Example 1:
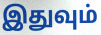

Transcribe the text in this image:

இதுவும்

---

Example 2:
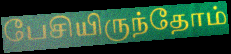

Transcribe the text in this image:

பேசியிருந்தோம்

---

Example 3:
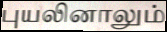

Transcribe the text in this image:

புயலினாலும்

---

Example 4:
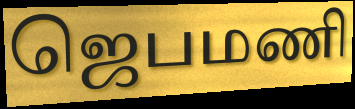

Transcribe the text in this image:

ஜெபமணி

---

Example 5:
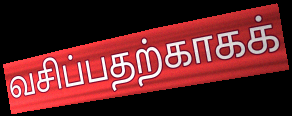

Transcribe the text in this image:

வசிப்பதற்காகக்